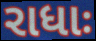
રાધાઃ